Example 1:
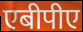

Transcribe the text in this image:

एबीपीए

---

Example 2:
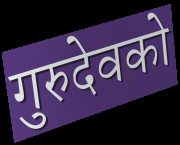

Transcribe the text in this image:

गुरुदेवको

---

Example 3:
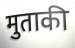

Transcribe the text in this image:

मुताकी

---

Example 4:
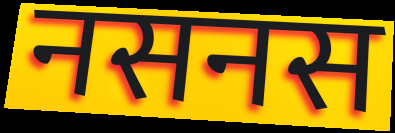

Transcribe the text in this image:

नसनस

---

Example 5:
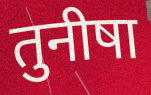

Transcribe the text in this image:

तुनीषा